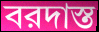
বরদাস্ত